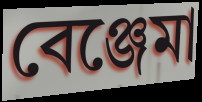
বেঞ্জেমা